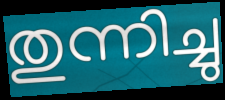
തുന്നിച്ചു